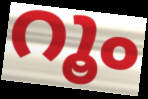
റൂം